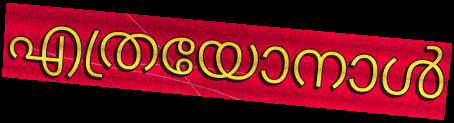
എത്രയോനാൾ